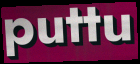
puttu